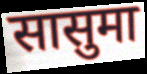
सासुमा